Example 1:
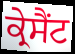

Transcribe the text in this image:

ਕ੍ਰੇਸੈਂਟ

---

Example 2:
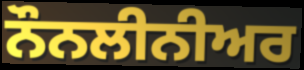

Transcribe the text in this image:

ਨੌਨਲੀਨੀਅਰ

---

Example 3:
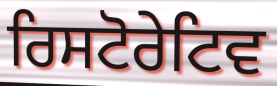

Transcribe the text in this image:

ਰਿਸਟੋਰੇਟਿਵ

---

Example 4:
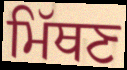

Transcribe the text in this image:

ਮਿੱਥਣ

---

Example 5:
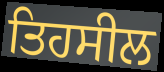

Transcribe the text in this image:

ਤਿਹਸੀਲ